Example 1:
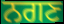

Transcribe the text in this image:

ਨਗਣ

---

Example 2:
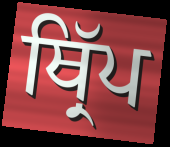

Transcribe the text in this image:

ਥ੍ਰਿੱਪ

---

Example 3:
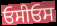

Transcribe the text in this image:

ਓਸੀਓਸ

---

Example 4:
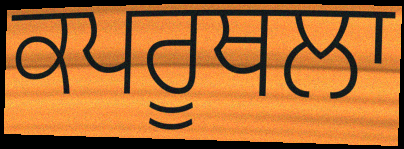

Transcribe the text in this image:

ਕਪਰੂਥਲਾ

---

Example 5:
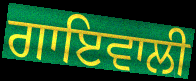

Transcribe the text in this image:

ਗਾਇਵਾਲੀ